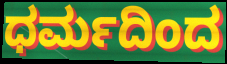
ಧರ್ಮದಿಂದ